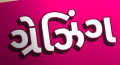
ગ્રેઝિંગ